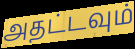
அதட்டவும்